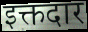
इक्तदार